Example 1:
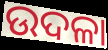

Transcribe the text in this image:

ଉଦଳା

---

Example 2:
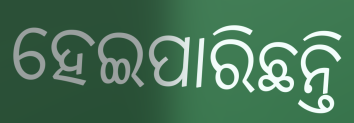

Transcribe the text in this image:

ହେଇପାରିଛନ୍ତି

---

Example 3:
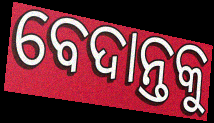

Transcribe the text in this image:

ବେଦାନ୍ତକୁ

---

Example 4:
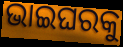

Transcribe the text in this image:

ଭାଇଘରକୁ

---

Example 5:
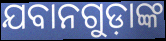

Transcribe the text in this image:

ଯବାନଗୁଡ଼ାଙ୍କ